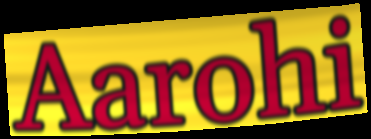
Aarohi